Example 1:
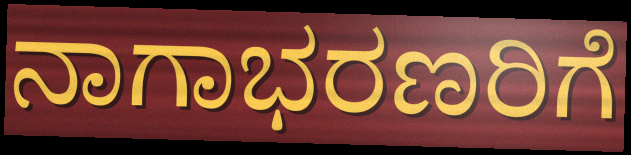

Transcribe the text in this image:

ನಾಗಾಭರಣರಿಗೆ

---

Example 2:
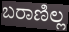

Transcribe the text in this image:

ಬರಾಣಿಲ್ಲ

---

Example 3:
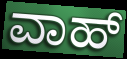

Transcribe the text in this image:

ವಾಹ್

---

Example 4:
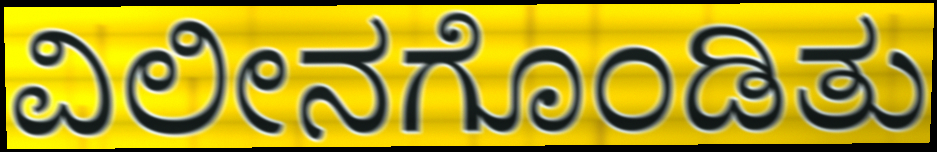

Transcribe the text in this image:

ವಿಲೀನಗೊಂಡಿತು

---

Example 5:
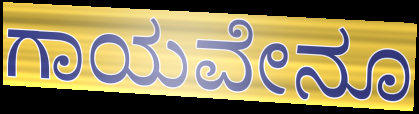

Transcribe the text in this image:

ಗಾಯವೇನೂ